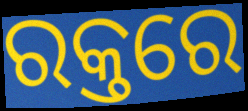
ରକ୍ତରେ